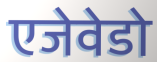
एजेवेडो